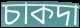
চাকদা